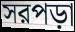
সরপড়া